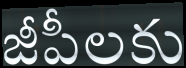
జీపీలకు